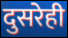
दुसरेही